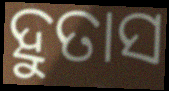
ହୁତାସ